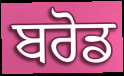
ਬਰੋਡ